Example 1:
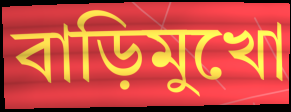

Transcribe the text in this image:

বাড়িমুখো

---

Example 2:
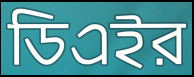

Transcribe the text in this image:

ডিএইর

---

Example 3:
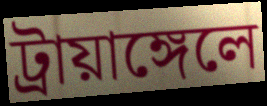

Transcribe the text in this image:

ট্রায়াঙ্গেলে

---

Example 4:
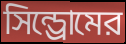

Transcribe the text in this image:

সিন্ড্রোমের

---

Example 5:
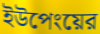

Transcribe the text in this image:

ইউপেংয়ের